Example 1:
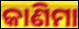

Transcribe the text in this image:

କାଣିମା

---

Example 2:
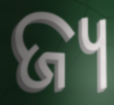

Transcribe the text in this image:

ଜ୍ୟ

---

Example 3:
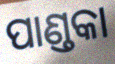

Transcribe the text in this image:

ପାଣ୍ଡକା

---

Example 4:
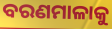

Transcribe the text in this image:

ବରଣମାଳାକୁ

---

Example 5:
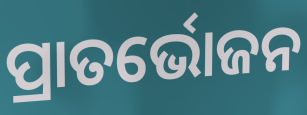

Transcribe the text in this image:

ପ୍ରାତର୍ଭୋଜନ